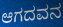
ಆಗದವನ